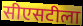
सीएसटीला